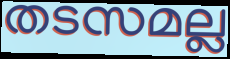
തടസമല്ല